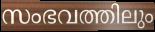
സംഭവത്തിലും